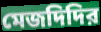
মেজদিদির